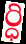
ర్ధి